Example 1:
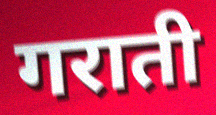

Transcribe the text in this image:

गराती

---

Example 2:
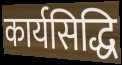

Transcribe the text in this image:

कार्यसिद्धि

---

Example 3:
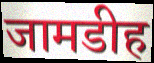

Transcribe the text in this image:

जामडीह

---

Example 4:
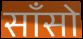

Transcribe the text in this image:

साँसो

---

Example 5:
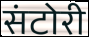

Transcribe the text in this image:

संटोरी